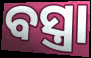
ବସ୍ତ୍ରା